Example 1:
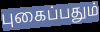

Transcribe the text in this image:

புகைப்பதும்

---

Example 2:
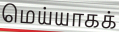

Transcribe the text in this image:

மெய்யாகக்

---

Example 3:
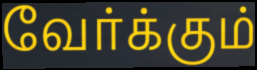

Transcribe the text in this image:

வேர்க்கும்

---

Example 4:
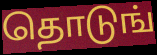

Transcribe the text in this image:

தொடுங்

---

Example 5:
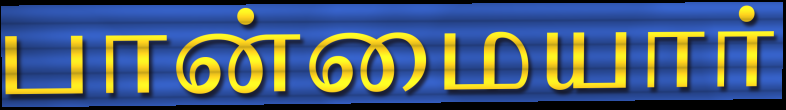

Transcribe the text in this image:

பான்மையார்